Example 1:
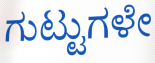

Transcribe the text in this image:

ಗುಟ್ಟುಗಳೇ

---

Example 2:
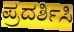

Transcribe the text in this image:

ಪ್ರದರ್ಶಿಸಿ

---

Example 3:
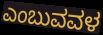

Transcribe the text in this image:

ಎಂಬುವವಳ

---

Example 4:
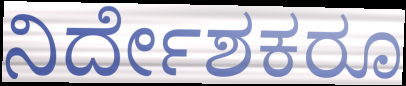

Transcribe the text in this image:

ನಿರ್ದೇಶಕರೂ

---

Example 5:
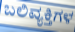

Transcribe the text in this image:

ಬಲಿವ್ಯಕ್ತಿಗಳ